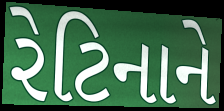
રેટિનાને